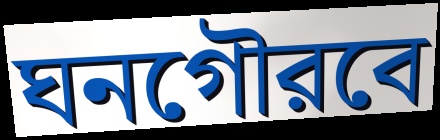
ঘনগৌরবে